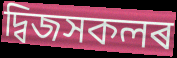
দ্বিজসকলৰ